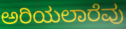
ಅರಿಯಲಾರೆವು